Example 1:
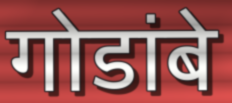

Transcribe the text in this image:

गोडांबे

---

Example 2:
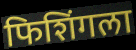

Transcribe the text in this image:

फिशिंगला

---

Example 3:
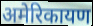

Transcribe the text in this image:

अमेरिकायण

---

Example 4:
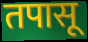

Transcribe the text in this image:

तपासू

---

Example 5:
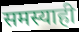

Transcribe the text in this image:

समस्याही